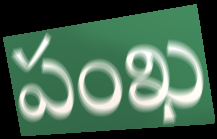
పంఖ